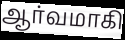
ஆர்வமாகி